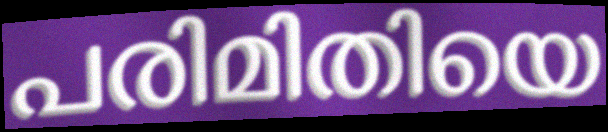
പരിമിതിയെ